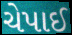
ચેપાઈ